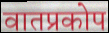
वातप्रकोप